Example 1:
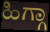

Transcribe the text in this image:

ಹಿಗ್ಗಾ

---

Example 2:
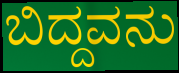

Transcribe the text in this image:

ಬಿದ್ದವನು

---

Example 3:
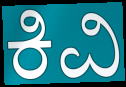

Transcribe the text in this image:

ಕಿವಿ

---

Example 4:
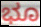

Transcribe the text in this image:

ಭೂ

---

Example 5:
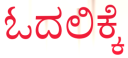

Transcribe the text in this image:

ಓದಲಿಕ್ಕೆ